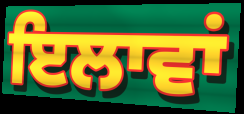
ਇਲਾਵਾਂ